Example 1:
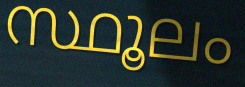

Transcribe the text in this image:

സ്ഥൂലം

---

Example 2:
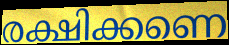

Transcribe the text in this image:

രക്ഷിക്കണെ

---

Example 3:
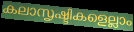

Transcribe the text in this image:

കലാസൃഷ്ടികളെല്ലാം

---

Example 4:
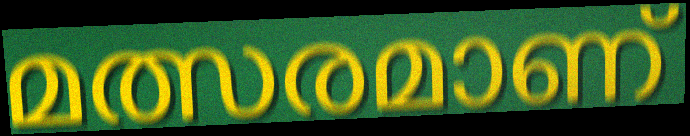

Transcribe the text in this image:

മത്സരമാണ്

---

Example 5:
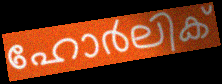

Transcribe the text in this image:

ഹോർലിക്